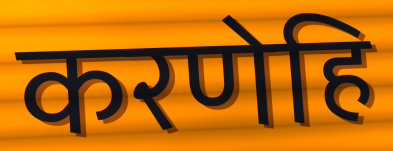
करणेहि